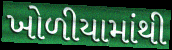
ખોળીયામાંથી